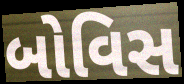
બોવિસ